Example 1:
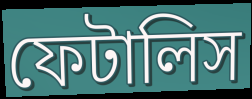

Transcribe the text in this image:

ফেটালিস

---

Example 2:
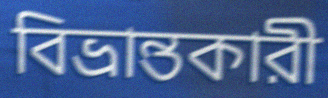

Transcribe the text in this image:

বিভ্রান্তকারী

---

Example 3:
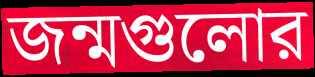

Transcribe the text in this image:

জন্মগুলোর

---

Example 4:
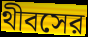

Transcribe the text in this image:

থীবসের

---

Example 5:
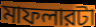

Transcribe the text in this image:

মাফলারটা